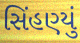
સિંહણ્યું